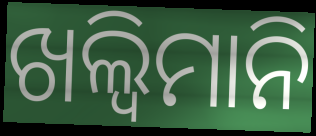
ଖଲ୍ୱିମାନି